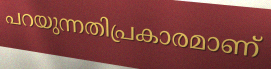
പറയുന്നതിപ്രകാരമാണ്